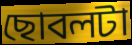
ছোবলটা